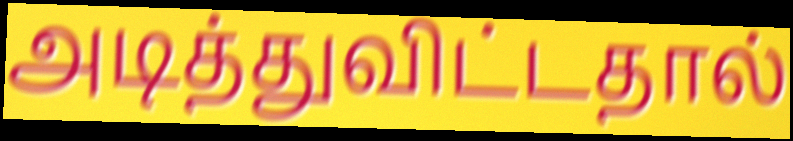
அடித்துவிட்டதால்